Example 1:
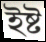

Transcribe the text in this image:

ইষ্ট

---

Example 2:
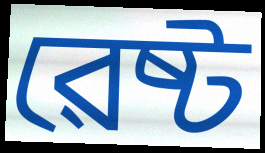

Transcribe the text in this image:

ৱেষ্ট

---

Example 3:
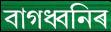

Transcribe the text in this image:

বাগধ্বনিৰ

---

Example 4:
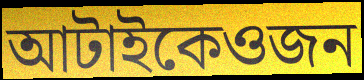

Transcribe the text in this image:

আটাইকেওজন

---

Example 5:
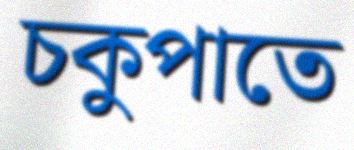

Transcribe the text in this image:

চকুপাতে